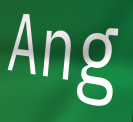
Ang